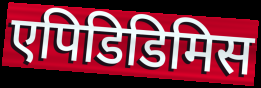
एपिडिडिमिस